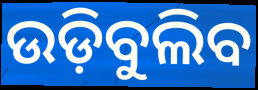
ଉଡ଼ିବୁଲିବ